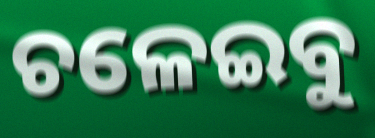
ଚଳେଇବୁ